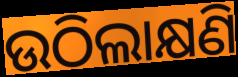
ଉଠିଲାକ୍ଷଣି